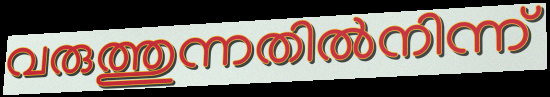
വരുത്തുന്നതിൽനിന്ന്